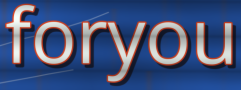
foryou